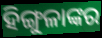
ହିଙ୍ଗୁଳାଙ୍କର